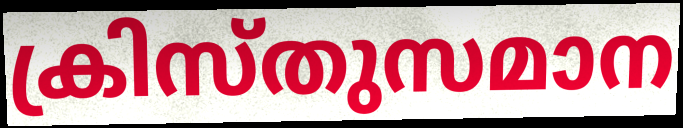
ക്രിസ്തുസമാന